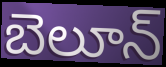
బెలూన్